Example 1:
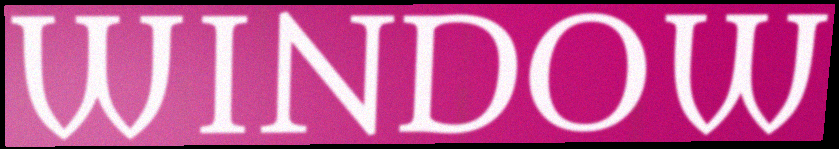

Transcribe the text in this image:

WINDOW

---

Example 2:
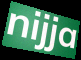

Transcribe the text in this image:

nijja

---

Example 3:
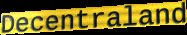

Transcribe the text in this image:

Decentraland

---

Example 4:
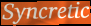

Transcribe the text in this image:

Syncretic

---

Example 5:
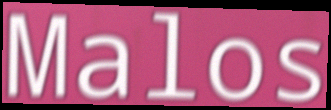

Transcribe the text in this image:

Malos